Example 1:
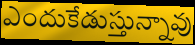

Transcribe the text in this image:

ఎందుకేడుస్తున్నావు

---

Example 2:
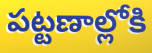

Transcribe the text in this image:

పట్టణాల్లోకి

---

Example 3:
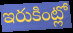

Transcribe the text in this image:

ఇరుకింట్లో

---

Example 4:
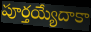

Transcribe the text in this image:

పూర్తయ్యేదాకా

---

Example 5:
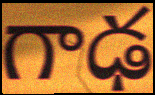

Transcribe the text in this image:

గాఢ